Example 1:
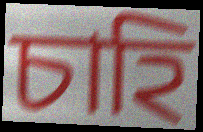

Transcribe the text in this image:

চাহি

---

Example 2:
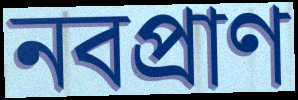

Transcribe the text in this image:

নবপ্রাণ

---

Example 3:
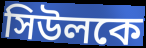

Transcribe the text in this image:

সিউলকে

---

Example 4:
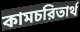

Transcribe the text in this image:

কামচরিতার্থ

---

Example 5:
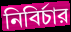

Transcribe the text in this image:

নিবির্চার